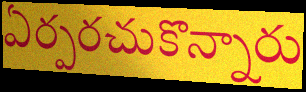
ఏర్పరచుకొన్నారు